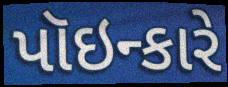
પૉઇન્કારે